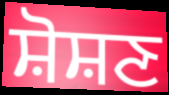
ਸ਼ੋਸ਼ਣ